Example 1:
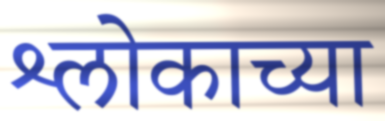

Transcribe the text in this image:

श्लोकाच्या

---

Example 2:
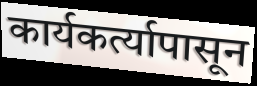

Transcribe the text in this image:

कार्यकर्त्यापासून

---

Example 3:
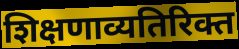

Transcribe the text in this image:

शिक्षणाव्यतिरिक्त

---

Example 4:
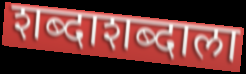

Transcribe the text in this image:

शब्दाशब्दाला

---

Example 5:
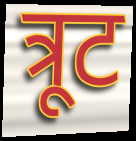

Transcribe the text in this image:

त्रूट